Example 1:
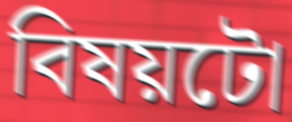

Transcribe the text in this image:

বিষয়টো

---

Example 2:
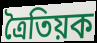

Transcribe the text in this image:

ত্ৰৈতিয়ক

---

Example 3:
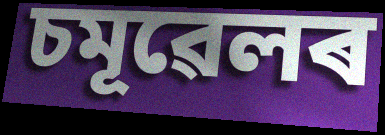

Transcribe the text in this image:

চমূৱেলৰ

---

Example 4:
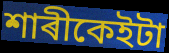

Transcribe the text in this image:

শাৰীকেইটা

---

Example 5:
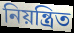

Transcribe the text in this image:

নিয়ন্ত্ৰিত